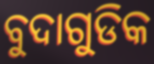
ବୁଦାଗୁଡିକ